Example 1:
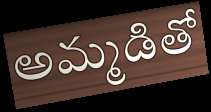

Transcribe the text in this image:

అమ్మడితో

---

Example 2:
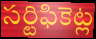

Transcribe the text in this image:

సర్టిఫికెట్ల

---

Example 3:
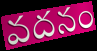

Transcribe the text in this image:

వదనం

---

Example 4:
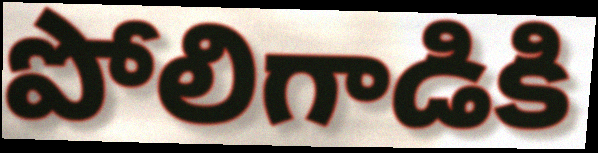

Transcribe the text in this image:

పోలిగాడికి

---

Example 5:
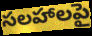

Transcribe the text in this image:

సలహాలపై